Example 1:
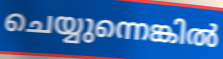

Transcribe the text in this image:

ചെയ്യുന്നെങ്കിൽ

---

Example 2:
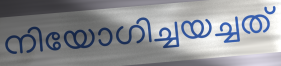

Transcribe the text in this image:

നിയോഗിച്ചയച്ചത്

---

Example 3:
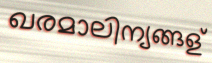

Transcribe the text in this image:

ഖരമാലിന്യങ്ങള്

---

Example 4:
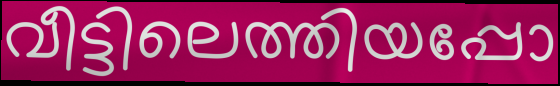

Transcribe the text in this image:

വീട്ടിലെത്തിയപ്പോ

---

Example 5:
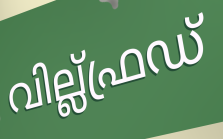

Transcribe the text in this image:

വില്ല്ഫ്രഡ്